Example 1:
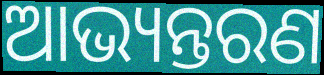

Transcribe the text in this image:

ଆଭ୍ୟନ୍ତରଣ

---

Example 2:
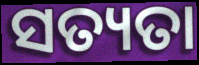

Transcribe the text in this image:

ସତ୍ୟତା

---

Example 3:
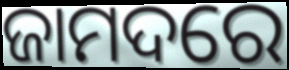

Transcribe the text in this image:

ଜାମଦରେ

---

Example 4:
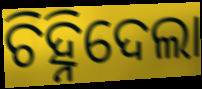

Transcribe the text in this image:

ଚିହ୍ନିଦେଲା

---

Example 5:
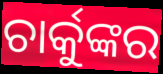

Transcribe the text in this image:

ଚାର୍କୁଙ୍କର